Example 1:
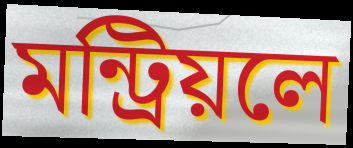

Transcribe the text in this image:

মন্ট্রিয়লে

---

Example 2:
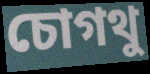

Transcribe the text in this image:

চোগথু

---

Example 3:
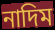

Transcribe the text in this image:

নাদিম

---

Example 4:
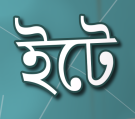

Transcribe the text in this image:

ইটে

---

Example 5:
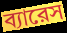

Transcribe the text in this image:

ব্যারেস